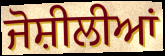
ਜੋਸ਼ੀਲੀਆਂ